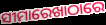
ସୀମାରେଖାଠାରେ